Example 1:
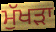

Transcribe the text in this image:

ਮੁੱਖੜਾ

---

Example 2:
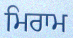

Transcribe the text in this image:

ਮਿਰਾਮ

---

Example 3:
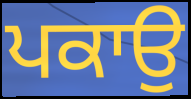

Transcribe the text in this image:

ਪਕਾਉ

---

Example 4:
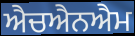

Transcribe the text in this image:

ਐਚਐਨਐਮ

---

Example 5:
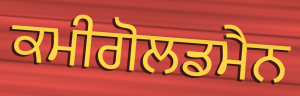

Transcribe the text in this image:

ਕਮੀਗੋਲਡਮੈਨ